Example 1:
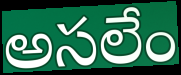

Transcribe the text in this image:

అసలేం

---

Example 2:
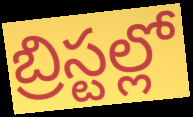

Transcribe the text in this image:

బ్రిస్టల్లో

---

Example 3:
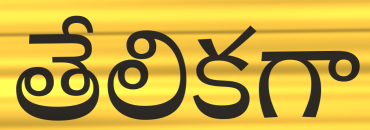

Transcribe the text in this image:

తేలికగా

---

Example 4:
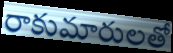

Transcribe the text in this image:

రాకుమారులతో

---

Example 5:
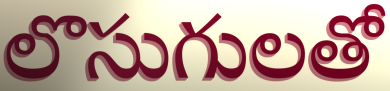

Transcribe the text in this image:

లొసుగులతో